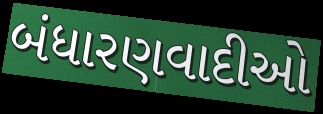
બંધારણવાદીઓ